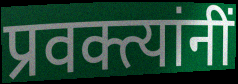
प्रवक्त्यांनीं